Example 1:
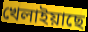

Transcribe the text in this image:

খেলাইয়াছে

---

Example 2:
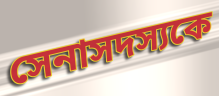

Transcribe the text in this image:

সেনাসদস্যকে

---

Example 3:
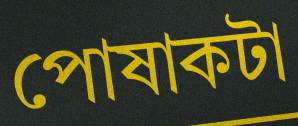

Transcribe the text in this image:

পোষাকটা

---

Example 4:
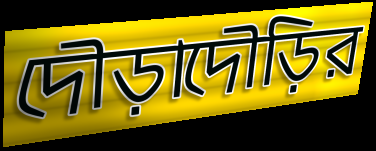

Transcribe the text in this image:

দৌড়াদৌড়ির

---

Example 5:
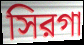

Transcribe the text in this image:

সিরগা